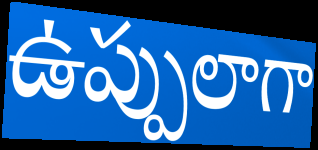
ఉప్పులాగా